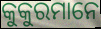
କୁକୁରମାନେ